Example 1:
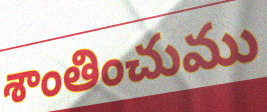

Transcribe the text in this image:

శాంతించుము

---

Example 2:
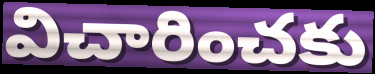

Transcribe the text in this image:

విచారించకు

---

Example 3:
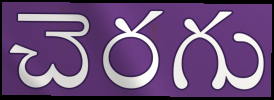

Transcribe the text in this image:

చెరగు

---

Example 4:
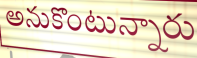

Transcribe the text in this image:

అనుకొంటున్నారు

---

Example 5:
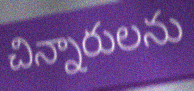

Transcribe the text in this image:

చిన్నారులను